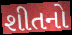
શીતનો